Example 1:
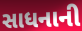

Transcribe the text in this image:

સાધનાની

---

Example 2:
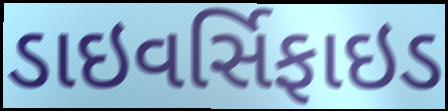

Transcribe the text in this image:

ડાઇવર્સિફાઇડ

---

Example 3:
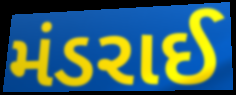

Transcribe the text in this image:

મંડરાઈ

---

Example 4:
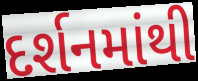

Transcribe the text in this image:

દર્શનમાંથી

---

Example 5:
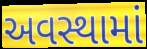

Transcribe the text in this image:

અવસ્થામાં